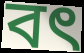
বৎ